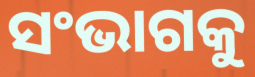
ସଂଭାଗକୁ